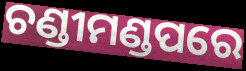
ଚଣ୍ଡୀମଣ୍ଡପରେ